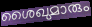
ശൈഖുമാരും